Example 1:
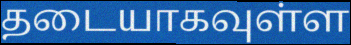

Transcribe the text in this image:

தடையாகவுள்ள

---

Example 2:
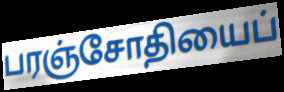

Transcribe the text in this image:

பரஞ்சோதியைப்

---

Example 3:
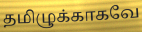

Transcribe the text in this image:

தமிழுக்காகவே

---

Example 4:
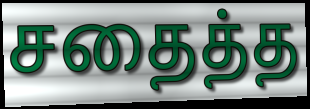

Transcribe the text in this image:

சதைத்த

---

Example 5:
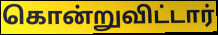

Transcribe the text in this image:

கொன்றுவிட்டார்